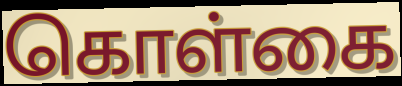
கொள்கை